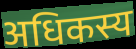
अधिकस्य